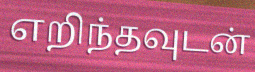
எறிந்தவுடன்